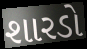
શારડો